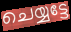
ചെയ്യട്ടേ